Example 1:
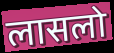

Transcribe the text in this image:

लासलो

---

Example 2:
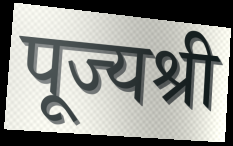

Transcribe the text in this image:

पूज्यश्री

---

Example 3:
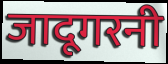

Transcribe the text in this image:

जादूगरनी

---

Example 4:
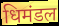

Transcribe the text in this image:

धिमंडल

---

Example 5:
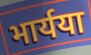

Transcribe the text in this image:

भार्यया